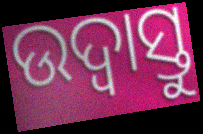
ଉଦ୍ବାସ୍ତୁ